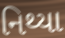
નિથ્યા